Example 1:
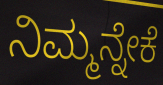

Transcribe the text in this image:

ನಿಮ್ಮನ್ನೇಕೆ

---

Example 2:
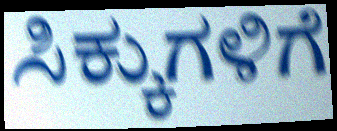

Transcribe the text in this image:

ಸಿಕ್ಕುಗಳಿಗೆ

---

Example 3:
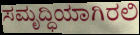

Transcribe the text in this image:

ಸಮೃದ್ಧಿಯಾಗಿರಲಿ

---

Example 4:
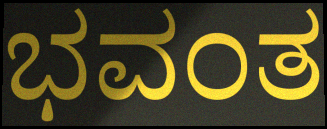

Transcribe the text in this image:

ಭವಂತ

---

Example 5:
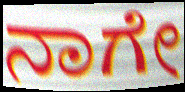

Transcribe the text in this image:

ನಾಗೇ